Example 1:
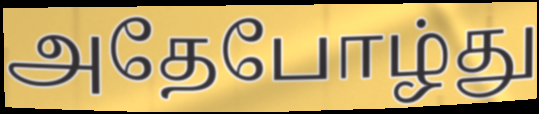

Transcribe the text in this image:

அதேபோழ்து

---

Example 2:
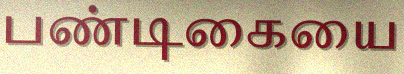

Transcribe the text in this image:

பண்டிகையை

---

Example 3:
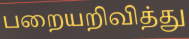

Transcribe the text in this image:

பறையறிவித்து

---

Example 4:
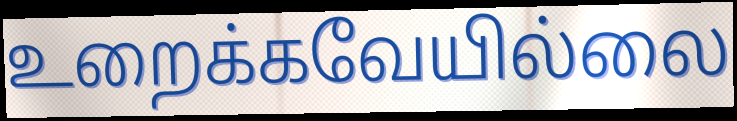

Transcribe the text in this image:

உறைக்கவேயில்லை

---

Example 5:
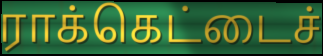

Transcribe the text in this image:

ராக்கெட்டைச்